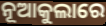
ନୂଆକୁଲାରେ